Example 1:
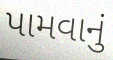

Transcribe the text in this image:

પામવાનું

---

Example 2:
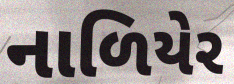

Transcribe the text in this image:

નાળિયેર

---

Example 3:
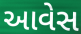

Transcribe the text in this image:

આવેસ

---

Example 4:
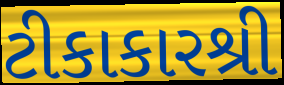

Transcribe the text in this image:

ટીકાકારશ્રી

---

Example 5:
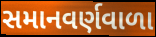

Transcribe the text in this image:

સમાનવર્ણવાળા